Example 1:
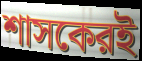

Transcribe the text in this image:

শাসকেরই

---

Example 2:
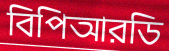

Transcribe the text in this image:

বিপিআরডি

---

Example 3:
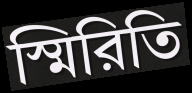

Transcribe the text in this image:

স্মিরিতি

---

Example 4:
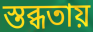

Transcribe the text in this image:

স্তব্ধতায়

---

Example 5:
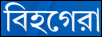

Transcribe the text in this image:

বিহগেরা